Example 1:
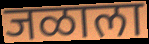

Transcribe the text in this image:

जळाला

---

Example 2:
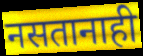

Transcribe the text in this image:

नसतानाही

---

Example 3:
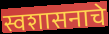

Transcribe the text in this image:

स्वशासनाचे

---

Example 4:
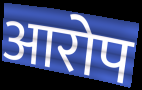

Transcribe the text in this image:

आरोप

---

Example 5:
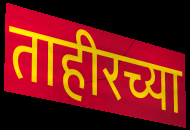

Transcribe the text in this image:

ताहीरच्या